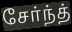
சேர்ந்த்